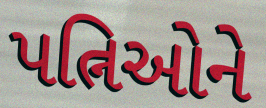
પત્નિઓને